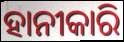
ହାନୀକାରି